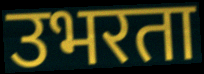
उभरता